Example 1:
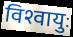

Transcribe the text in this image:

विश्वायुः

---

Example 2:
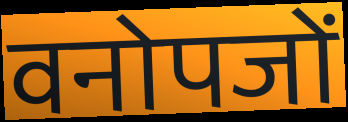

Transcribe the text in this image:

वनोपजों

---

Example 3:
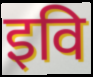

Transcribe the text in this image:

इवि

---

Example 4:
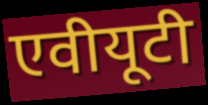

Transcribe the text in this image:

एवीयूटी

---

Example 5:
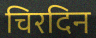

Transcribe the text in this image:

चिरदिन